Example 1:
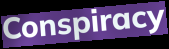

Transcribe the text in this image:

Conspiracy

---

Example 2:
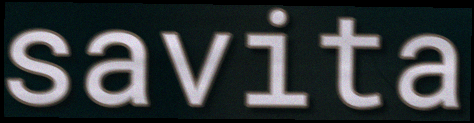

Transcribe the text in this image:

savita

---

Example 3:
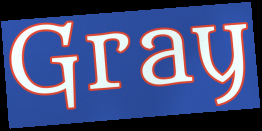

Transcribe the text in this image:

Gray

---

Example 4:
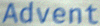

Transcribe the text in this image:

Advent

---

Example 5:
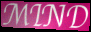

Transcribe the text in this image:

MIND